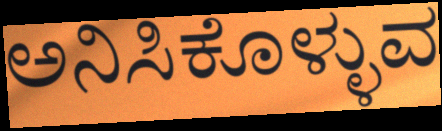
ಅನಿಸಿಕೊಳ್ಳುವ